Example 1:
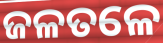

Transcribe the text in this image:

ଜଳତଳେ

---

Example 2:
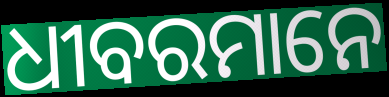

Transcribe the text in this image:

ଧୀବରମାନେ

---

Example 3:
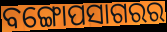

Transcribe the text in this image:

ବଙ୍ଗୋପସାଗରର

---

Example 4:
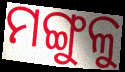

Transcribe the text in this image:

ମଙ୍ଗୁଳୁ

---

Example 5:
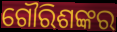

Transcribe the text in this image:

ଗୌରିଶଙ୍କର